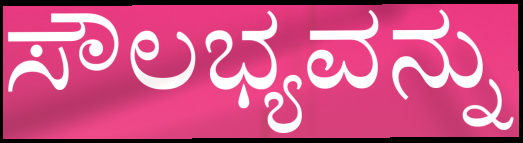
ಸೌಲಭ್ಯವನ್ನು